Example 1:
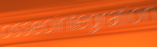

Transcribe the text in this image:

osseointegration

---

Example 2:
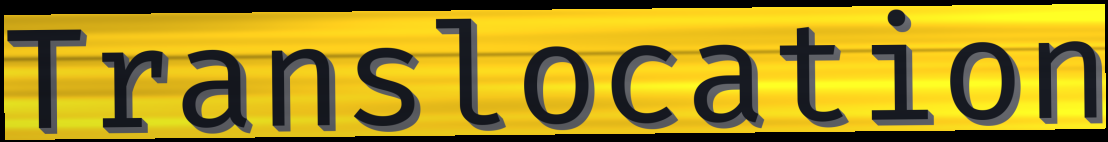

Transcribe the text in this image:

Translocation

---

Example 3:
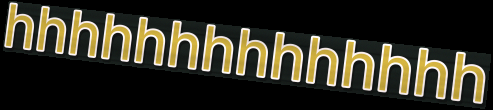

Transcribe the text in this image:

hhhhhhhhhhhhhh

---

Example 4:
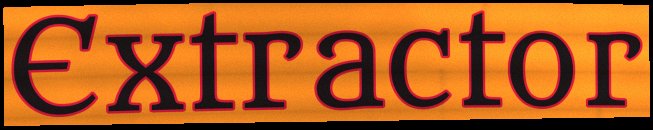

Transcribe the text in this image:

Extractor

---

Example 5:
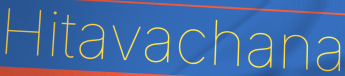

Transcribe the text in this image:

Hitavachana